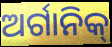
ଅର୍ଗାନିକ୍